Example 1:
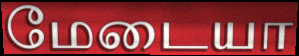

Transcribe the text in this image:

மேடையா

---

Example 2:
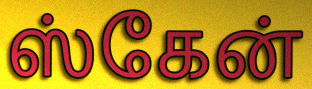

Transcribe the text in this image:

ஸ்கேன்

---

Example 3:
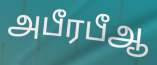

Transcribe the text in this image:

அபீரபீஆ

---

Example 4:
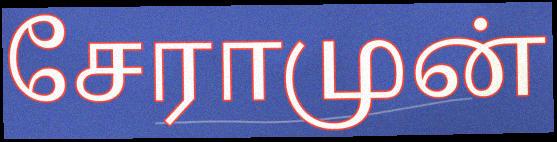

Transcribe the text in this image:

சேராமுன்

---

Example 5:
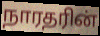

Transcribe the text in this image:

நாரதரின்